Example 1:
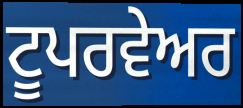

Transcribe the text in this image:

ਟੂਪਰਵੇਅਰ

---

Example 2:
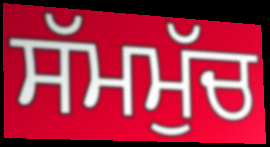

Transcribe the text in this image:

ਸੱਮਮੁੱਚ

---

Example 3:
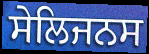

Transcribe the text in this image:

ਸੇਲਿਜਨਸ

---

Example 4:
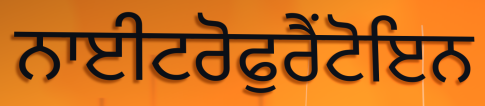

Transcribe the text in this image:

ਨਾਈਟਰੋਫੁਰੈਂਟੋਇਨ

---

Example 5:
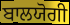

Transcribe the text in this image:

ਬਾਲਯੋਗੀ